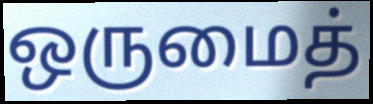
ஒருமைத்